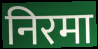
निरमा